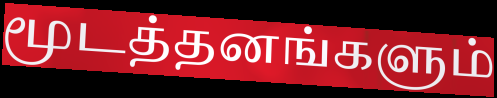
மூடத்தனங்களும்